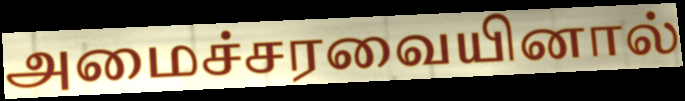
அமைச்சரவையினால்